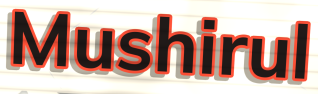
Mushirul